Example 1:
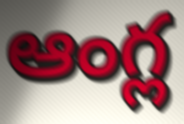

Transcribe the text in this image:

ఆంగ్ల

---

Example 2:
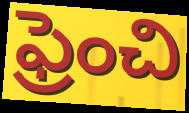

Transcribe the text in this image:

ఫ్రెంచి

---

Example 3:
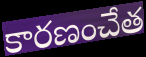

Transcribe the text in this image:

కారణంచేత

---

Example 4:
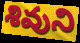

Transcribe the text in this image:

శివుని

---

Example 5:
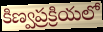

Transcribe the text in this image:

కిణ్వప్రక్రియలో